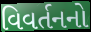
વિવર્તનનો